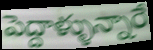
పెద్దాళ్ళున్నారే